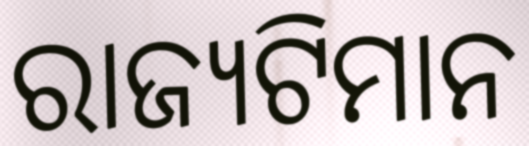
ରାଜ୍ୟଟିମାନ